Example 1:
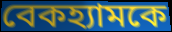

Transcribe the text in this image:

বেকহ্যামকে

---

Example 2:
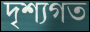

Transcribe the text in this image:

দৃশ্যগত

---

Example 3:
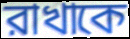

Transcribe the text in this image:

রাখাকে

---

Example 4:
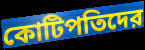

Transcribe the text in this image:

কোটিপতিদের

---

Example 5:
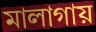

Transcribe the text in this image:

মালাগায়